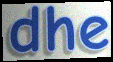
dhe